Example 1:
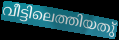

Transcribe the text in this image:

വീട്ടിലെത്തിയതു്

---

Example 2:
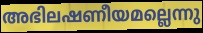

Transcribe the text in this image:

അഭിലഷണീയമല്ലെന്നു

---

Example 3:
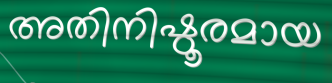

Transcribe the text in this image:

അതിനിഷ്ഠൂരമായ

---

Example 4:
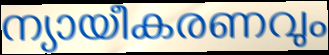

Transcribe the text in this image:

ന്യായീകരണവും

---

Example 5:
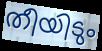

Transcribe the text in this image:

തീയിടും